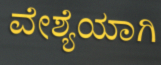
ವೇಶ್ಯೆಯಾಗಿ